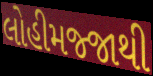
લોહીમજ્જાથી